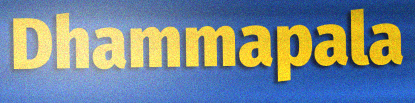
Dhammapala